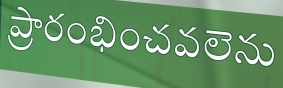
ప్రారంభించవలెను